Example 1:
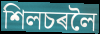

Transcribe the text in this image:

শিলচৰলৈ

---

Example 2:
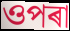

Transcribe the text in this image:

ওপৰা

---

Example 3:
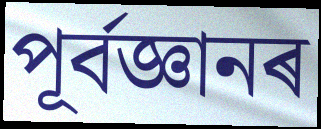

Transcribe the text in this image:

পূৰ্বজ্ঞানৰ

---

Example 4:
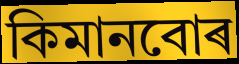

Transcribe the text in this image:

কিমানবোৰ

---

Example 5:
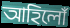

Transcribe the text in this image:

আহিলোঁ